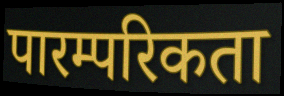
पारम्परिकता